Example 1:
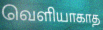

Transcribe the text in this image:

வெளியாகாத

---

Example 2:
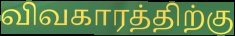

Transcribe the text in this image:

விவகாரத்திற்கு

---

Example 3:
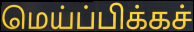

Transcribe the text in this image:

மெய்ப்பிக்கச்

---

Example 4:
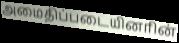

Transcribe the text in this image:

அமைதிப்படையினரின்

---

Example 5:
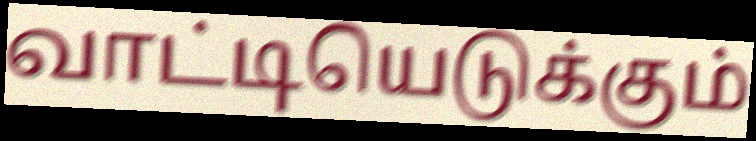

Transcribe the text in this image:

வாட்டியெடுக்கும்